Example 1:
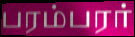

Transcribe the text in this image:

பரம்பரர்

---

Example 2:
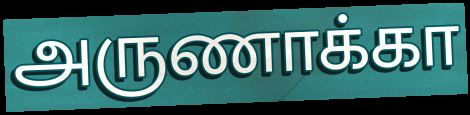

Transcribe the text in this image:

அருணாக்கா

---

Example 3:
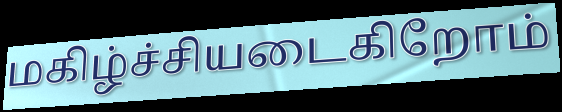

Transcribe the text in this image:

மகிழ்ச்சியடைகிறோம்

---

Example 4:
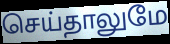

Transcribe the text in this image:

செய்தாலுமே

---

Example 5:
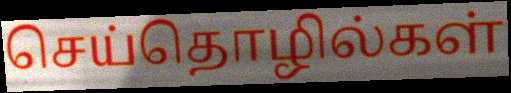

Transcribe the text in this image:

செய்தொழில்கள்